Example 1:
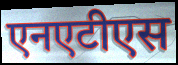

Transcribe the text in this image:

एनएटीएस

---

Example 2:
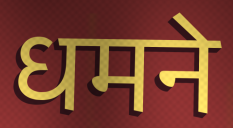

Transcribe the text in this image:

धमने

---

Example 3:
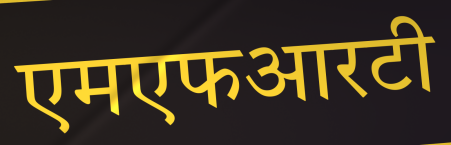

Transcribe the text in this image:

एमएफआरटी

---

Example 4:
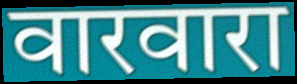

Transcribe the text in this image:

वारवारा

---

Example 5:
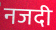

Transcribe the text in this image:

नजदी